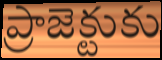
ప్రాజెక్టుకు